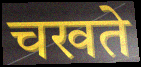
चखते